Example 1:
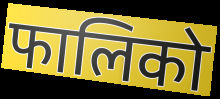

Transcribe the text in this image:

फालिको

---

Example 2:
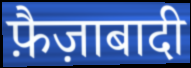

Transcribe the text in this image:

फ़ैज़ाबादी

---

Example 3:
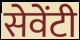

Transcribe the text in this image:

सेवेंटी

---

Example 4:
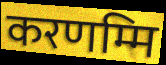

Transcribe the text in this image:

करणम्मि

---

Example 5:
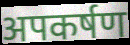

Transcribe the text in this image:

अपकर्षण